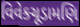
વિવેકચૂડામણિ